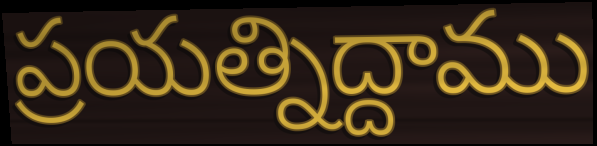
ప్రయత్నిద్దాము